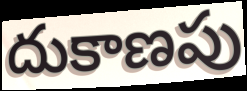
దుకాణపు